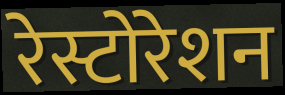
रेस्टोरेशन